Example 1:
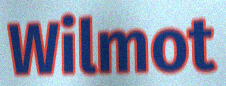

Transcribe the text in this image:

Wilmot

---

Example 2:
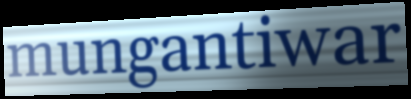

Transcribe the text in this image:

mungantiwar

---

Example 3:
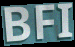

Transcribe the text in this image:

BFI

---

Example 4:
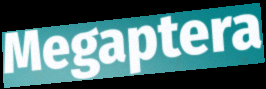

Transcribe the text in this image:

Megaptera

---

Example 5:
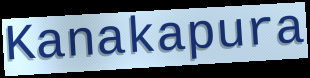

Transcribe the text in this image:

Kanakapura